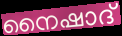
നൈഷാദ്